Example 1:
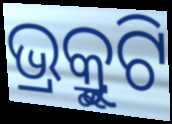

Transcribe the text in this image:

ଭ୍ର୍ରୁକୁଟି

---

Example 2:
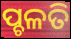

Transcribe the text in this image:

ପ୍ଚଳତି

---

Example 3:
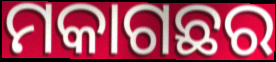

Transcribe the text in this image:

ମକାଗଛର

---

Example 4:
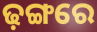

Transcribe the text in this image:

ଢ଼ଙ୍ଗରେ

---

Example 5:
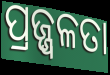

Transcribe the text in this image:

ପ୍ରଜ୍ଜ୍ୱଳତା